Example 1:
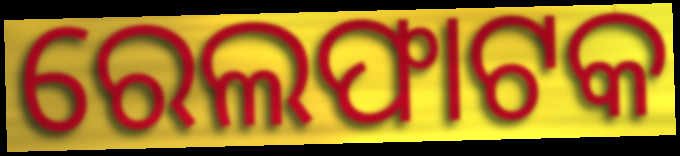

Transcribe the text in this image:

ରେଲଫାଟକ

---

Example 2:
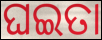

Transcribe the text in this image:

ଘଇତା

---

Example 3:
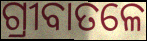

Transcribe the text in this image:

ଗ୍ରୀବାତଳେ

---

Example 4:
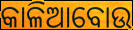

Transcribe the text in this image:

କାଳିଆବୋଉ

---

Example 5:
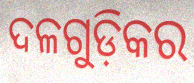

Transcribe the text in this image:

ଦଳଗୁଡ଼ିକର